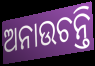
ଅନାଉଚନ୍ତି